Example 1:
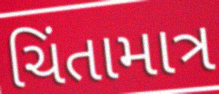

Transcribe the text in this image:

ચિંતામાત્ર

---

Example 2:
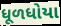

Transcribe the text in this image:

ધૂળધોયા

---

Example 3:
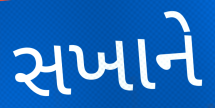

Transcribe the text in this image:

સખાને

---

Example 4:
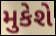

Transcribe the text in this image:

મુકેશે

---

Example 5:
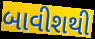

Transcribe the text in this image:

બાવીશથી